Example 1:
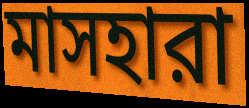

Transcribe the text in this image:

মাসহারা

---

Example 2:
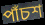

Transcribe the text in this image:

পাঁচশ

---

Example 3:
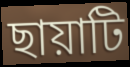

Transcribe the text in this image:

ছায়াটি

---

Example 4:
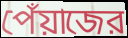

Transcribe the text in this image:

পেঁয়াজের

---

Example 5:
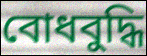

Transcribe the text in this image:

বোধবুদ্ধি